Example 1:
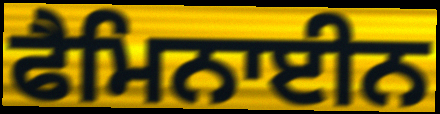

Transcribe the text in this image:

ਫੈਮਿਨਾਈਨ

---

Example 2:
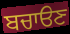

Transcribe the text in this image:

ਬਚਾੳਣ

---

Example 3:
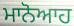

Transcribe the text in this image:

ਮਾਨੋਆਹ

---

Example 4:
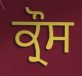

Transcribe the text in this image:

ਕ੍ਰੌਸ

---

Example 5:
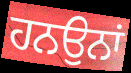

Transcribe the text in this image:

ਹਨਉਨਾਂ